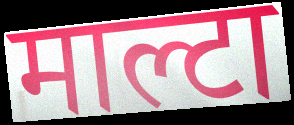
माल्टा